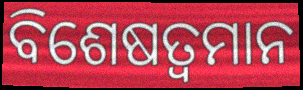
ବିଶେଷତ୍ଵମାନ